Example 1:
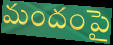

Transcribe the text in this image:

మందంపై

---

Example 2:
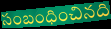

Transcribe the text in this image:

సంబంధించినది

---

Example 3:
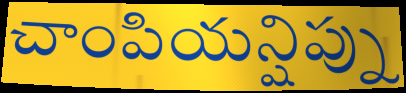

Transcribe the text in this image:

చాంపియన్షిప్ను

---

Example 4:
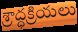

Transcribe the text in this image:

శ్రాద్ధక్రియలు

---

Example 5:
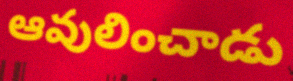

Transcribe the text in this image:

ఆవులించాడు